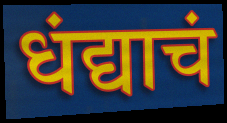
धंद्याचं